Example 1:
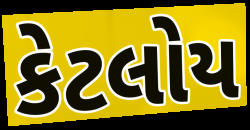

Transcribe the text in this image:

કેટલોય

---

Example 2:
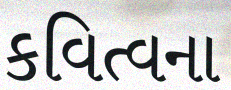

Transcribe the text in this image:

કવિત્વના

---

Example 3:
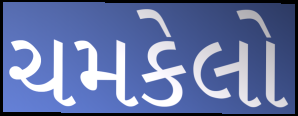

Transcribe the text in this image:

ચમકેલો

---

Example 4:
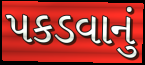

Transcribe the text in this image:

પકડવાનું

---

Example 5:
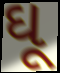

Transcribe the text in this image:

ઘૂ